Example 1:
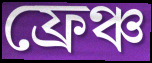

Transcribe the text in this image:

ফ্রেঞ্চ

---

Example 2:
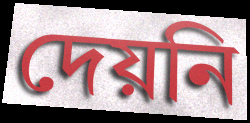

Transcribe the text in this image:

দেয়নি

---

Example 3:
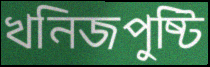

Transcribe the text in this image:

খনিজপুষ্টি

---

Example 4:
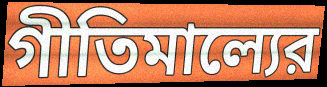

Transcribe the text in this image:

গীতিমাল্যের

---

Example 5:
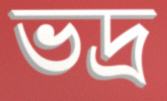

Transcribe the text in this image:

ভদ্র